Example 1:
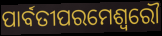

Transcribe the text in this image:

ପାର୍ବତୀପରମେଶ୍ଵରୌ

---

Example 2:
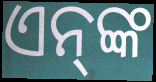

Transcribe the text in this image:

ଏନ୍‌ଙ୍କ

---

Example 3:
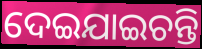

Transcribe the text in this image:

ଦେଇଯାଇଚନ୍ତି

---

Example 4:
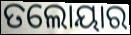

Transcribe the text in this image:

ତଲୋୟାର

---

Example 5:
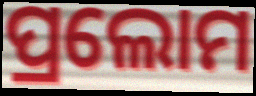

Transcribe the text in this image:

ପ୍ରଲୋମ